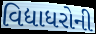
વિદ્યાધરોની